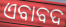
ଏବାବଦ